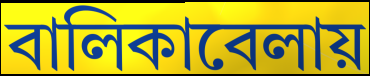
বালিকাবেলায়